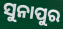
ସୁନାପୁର